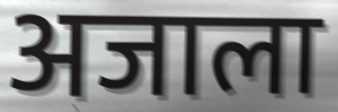
अजाला